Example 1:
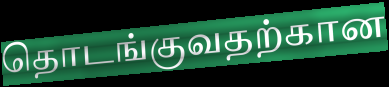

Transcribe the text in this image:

தொடங்குவதற்கான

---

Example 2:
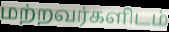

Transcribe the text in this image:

மற்றவர்களிடம்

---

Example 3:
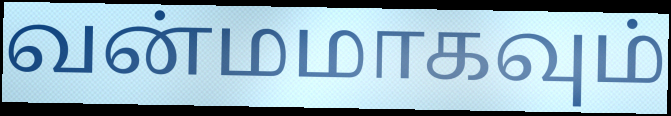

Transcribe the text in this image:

வன்மமாகவும்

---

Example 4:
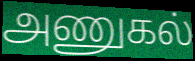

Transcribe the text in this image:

அணுகல்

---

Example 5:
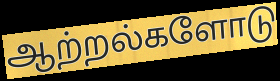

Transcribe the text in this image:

ஆற்றல்களோடு